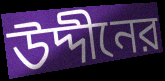
উদ্দীনের